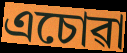
এচোৱা